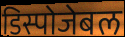
डिस्पोजेबल